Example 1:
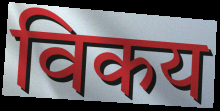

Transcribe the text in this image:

विकय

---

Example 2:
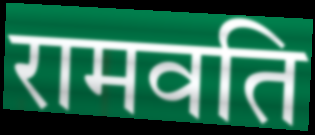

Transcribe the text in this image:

रामवति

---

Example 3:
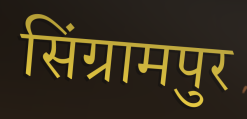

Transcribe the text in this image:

सिंग्रामपुर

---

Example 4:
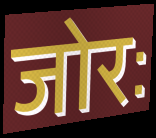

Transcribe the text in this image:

जोरः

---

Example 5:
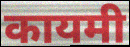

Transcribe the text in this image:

कायमी